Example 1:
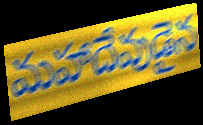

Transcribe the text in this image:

మహాదేవుడైన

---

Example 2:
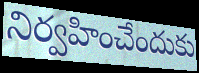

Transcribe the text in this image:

నిర్వహించేందుకు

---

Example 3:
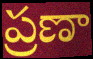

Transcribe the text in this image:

ప్రణా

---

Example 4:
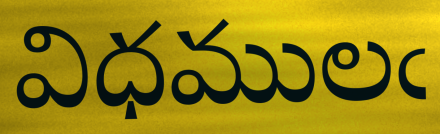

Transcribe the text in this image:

విధములఁ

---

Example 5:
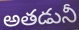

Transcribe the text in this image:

అతడునీ